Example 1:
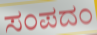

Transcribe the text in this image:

ಸಂಪದಂ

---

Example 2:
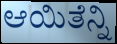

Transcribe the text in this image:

ಆಯಿತೆನ್ನಿ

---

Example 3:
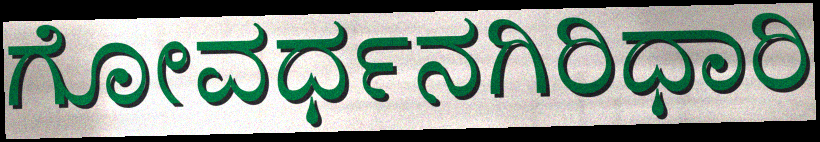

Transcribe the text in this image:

ಗೋವರ್ಧನಗಿರಿಧಾರಿ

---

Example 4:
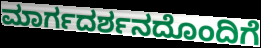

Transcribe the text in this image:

ಮಾರ್ಗದರ್ಶನದೊಂದಿಗೆ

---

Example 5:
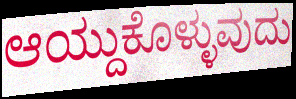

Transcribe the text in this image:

ಆಯ್ದುಕೊಳ್ಳುವುದು